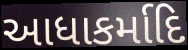
આધાકર્માદિ